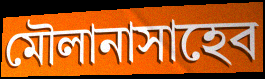
মৌলানাসাহেব